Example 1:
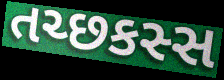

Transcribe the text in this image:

તચ્છકસ્સ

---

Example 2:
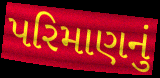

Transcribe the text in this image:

પરિમાણનું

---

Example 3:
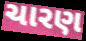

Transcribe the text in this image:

ચારણ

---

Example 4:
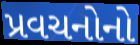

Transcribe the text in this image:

પ્રવચનોનો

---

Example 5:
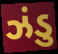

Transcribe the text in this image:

ઝંડુ